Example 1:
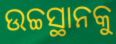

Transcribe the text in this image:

ଉଚ୍ଚସ୍ଥାନକୁ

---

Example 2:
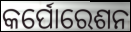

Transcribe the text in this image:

କର୍ପୋରେଶନ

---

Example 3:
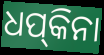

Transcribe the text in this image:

ଧପ୍‍କିନା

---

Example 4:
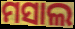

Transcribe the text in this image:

ମସାଲ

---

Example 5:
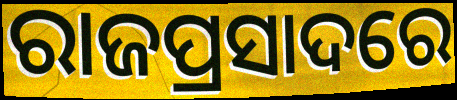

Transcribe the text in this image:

ରାଜପ୍ରସାଦରେ